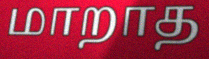
மாறாத